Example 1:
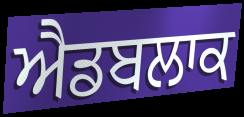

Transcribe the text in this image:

ਐਡਬਲਾਕ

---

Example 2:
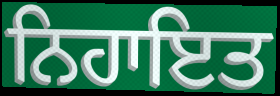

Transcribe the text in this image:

ਨਿਹਾਇਤ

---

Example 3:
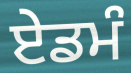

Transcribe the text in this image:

ਏਡਮੰ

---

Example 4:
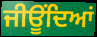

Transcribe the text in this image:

ਜੀਊਂਦਿਆਂ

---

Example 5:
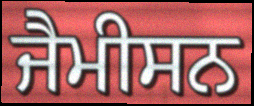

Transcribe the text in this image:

ਜੈਮੀਸਨ